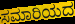
ಸಮಾರಿಯದ